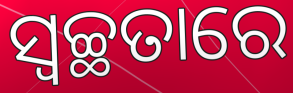
ସ୍ବଚ୍ଛତାରେ